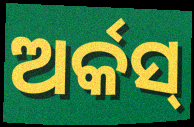
ଅର୍କସ୍